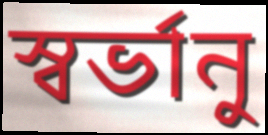
স্বর্ভানু